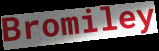
Bromiley